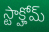
స్టాక్హోమ్